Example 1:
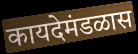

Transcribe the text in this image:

कायदेमंडळास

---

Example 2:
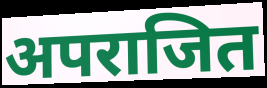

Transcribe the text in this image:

अपराजित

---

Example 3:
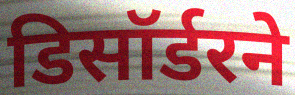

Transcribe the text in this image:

डिसॉर्डरने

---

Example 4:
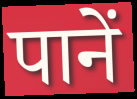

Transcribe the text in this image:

पानें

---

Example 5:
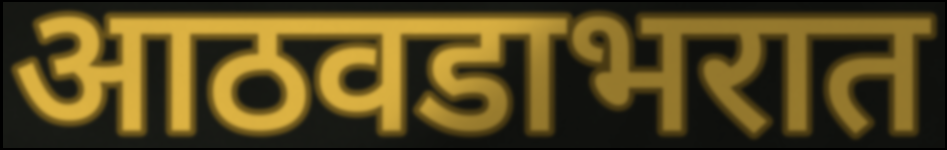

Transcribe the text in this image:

आठवडाभरात